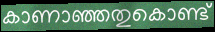
കാണാഞ്ഞതുകൊണ്ട്